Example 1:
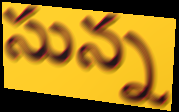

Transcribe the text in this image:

సున్న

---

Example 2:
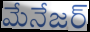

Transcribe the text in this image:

మేనేజర్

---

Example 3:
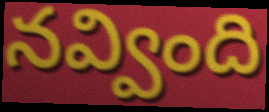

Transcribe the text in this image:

నవ్వింది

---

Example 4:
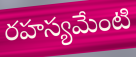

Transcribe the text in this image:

రహస్యమేంటి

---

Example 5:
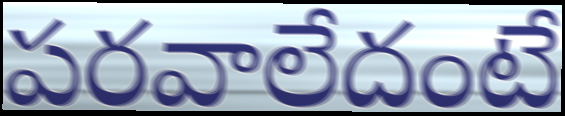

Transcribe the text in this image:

పరవాలేదంటే